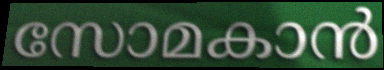
സോമകാൻ